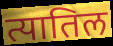
त्यातिल